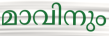
മാവിനും